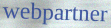
webpartner